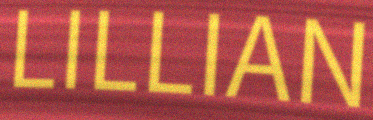
LILLIAN